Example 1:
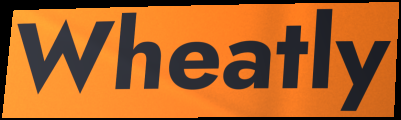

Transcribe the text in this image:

Wheatly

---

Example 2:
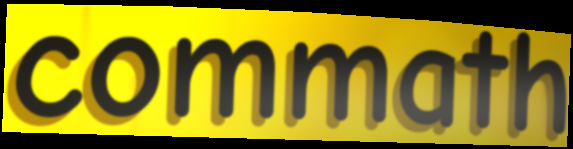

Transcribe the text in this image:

commath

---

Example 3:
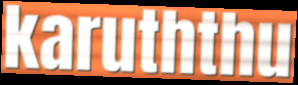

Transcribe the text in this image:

karuththu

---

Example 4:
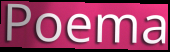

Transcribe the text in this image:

Poema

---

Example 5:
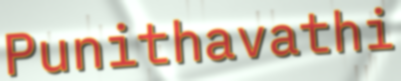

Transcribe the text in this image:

Punithavathi